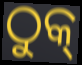
ଠୁକ୍